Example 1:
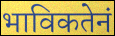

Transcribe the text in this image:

भाविकतेनं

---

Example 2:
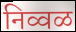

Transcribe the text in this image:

निव्वळ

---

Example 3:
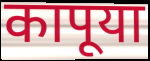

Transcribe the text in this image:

कापूया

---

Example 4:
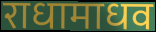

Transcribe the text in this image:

राधामाधव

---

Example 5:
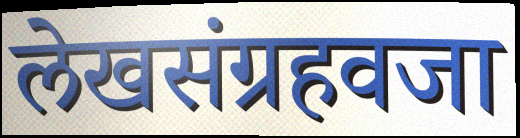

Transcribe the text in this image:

लेखसंग्रहवजा